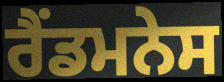
ਰੈਂਡਮਨੇਸ